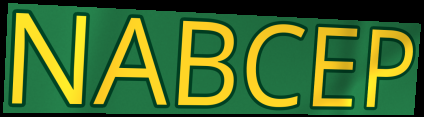
NABCEP